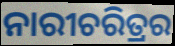
ନାରୀଚରିତ୍ରର